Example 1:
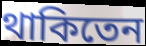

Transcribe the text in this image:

থাকিতেন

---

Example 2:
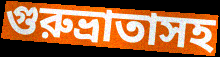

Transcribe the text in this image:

গুরুভ্রাতাসহ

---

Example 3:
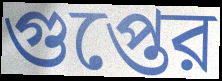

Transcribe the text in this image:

গুপ্তের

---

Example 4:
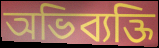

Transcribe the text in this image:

অভিব্যক্তি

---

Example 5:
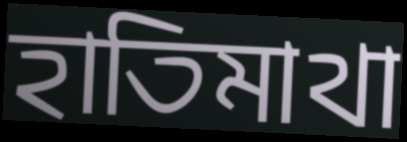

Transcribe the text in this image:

হাতিমাথা